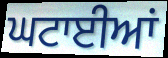
ਘਟਾਈਆਂ